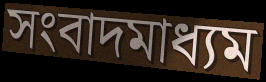
সংবাদমাধ্যম